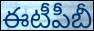
ఈటీపీబీ